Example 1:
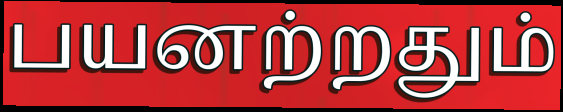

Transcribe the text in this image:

பயனற்றதும்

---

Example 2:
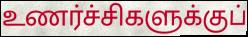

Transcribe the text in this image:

உணர்ச்சிகளுக்குப்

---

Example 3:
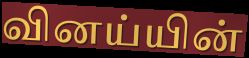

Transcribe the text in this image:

வினய்யின்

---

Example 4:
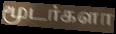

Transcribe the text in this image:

மூடர்களா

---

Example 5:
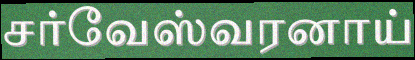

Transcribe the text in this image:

சர்வேஸ்வரனாய்